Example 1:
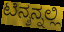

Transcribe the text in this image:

ಟೆನ್ಶನ್ನಲ್ಲಿ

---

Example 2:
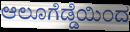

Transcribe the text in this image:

ಆಲೂಗೆಡ್ಡೆಯಿಂದ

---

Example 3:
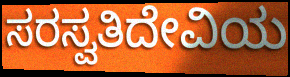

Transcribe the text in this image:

ಸರಸ್ವತಿದೇವಿಯ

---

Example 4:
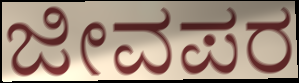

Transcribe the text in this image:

ಜೀವಪರ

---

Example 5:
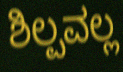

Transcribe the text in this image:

ಶಿಲ್ಪವಲ್ಲ